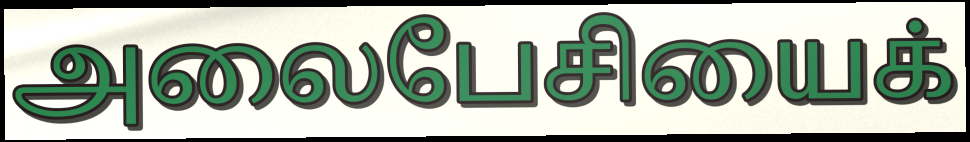
அலைபேசியைக்